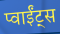
प्वाईंट्स